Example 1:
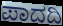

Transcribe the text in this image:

ಪಾದದಿ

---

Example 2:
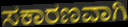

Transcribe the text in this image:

ಸಕಾರಣವಾಗಿ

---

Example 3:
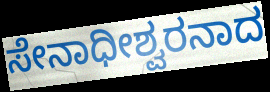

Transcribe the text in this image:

ಸೇನಾಧೀಶ್ವರನಾದ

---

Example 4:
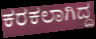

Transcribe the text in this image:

ಕರಕಲಾಗಿದ್ದ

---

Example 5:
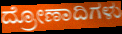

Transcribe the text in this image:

ದ್ರೋಣಾದಿಗಳು